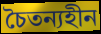
চৈতন্যহীন